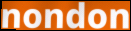
nondon